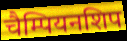
चैम्पियनशिप